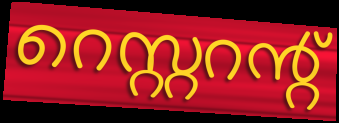
റെസ്റ്ററന്റ്